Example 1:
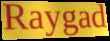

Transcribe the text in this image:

Raygad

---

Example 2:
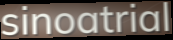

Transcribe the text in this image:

sinoatrial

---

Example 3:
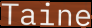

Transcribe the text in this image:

Taine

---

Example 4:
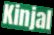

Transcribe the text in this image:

Kinjal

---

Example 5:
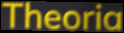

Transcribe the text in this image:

Theoria